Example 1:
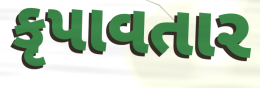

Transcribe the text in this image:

કૃપાવતાર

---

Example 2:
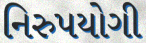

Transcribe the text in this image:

નિરુપયોગી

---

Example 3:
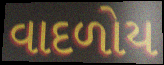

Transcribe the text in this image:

વાદળોય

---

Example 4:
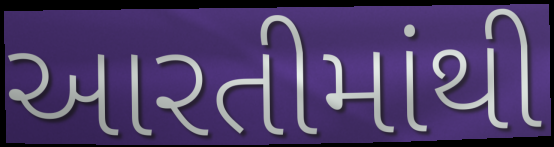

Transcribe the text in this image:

આરતીમાંથી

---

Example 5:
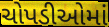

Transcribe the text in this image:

ચોપડીઓમાં